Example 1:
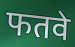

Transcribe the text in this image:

फतवे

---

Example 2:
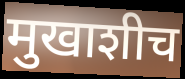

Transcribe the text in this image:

मुखाशीच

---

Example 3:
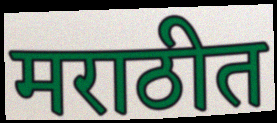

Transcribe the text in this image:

मराठीत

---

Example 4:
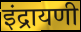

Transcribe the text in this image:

इंद्रायणी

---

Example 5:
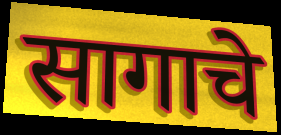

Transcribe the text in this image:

सागाचे